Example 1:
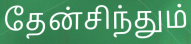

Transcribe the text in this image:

தேன்சிந்தும்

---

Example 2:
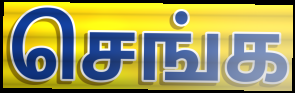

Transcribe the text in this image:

செங்க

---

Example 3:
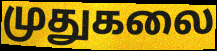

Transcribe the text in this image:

முதுகலை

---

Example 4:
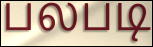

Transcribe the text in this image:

பலபடி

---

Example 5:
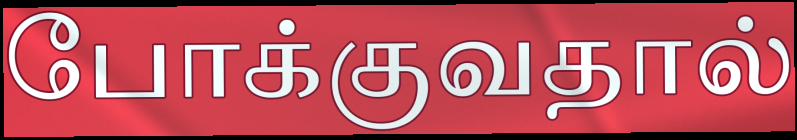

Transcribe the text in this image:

போக்குவதால்